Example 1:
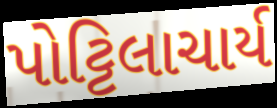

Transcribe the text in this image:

પોટ્ટિલાચાર્ય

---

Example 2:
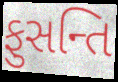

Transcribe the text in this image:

ફુસન્તિ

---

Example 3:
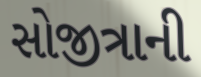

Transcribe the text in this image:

સોજીત્રાની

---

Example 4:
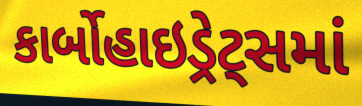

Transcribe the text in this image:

કાર્બોહાઇડ્રેટ્સમાં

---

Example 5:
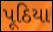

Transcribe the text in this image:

પૂઠિયા